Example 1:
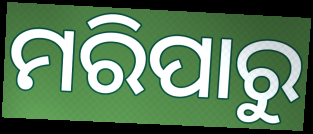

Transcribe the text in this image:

ମରିପାରୁ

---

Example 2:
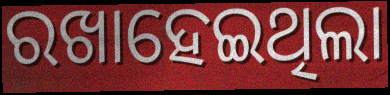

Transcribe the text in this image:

ରଖାହେଇଥିଲା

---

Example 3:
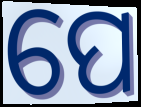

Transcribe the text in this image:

ପେ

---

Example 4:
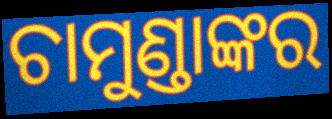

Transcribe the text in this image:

ଚାମୁଣ୍ଡାଙ୍କର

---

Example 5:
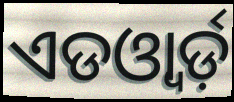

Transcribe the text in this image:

ଏଡଓ୍ବାର୍ଡ଼